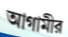
আগামীর